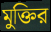
মুক্তির